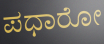
ಪಧಾರೋ